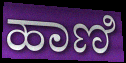
ಹಾಣಿ